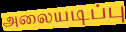
அலையடிப்பு